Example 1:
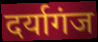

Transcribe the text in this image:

दर्यागंज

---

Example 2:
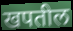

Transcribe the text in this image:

खपतील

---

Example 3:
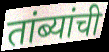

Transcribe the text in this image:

तांब्यांची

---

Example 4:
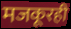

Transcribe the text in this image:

मजकूरही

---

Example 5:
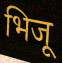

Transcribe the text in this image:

भिजू